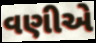
વણીએ